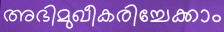
അഭിമുഖീകരിച്ചേക്കാം